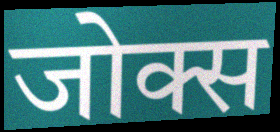
जोक्स